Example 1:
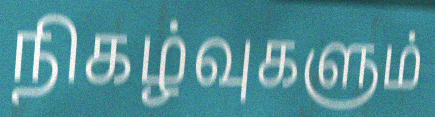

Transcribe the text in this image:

நிகழ்வுகளும்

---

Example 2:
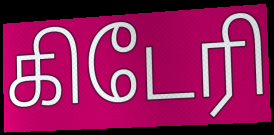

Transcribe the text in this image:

கிடேரி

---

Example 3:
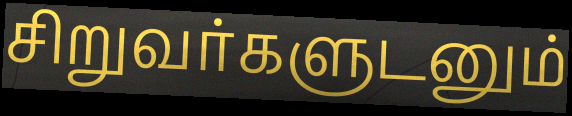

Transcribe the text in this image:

சிறுவர்களுடனும்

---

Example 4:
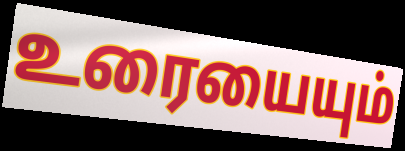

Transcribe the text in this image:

உரையையும்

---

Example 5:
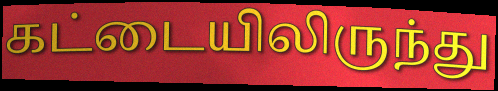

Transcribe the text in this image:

கட்டையிலிருந்து